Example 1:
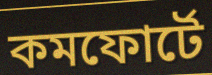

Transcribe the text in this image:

কমফোর্টে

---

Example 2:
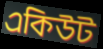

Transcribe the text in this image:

একিউট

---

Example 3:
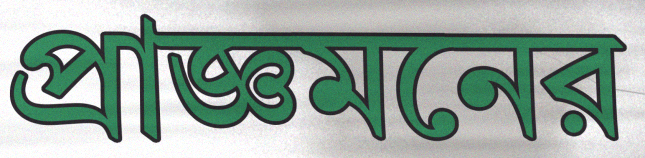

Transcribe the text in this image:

প্রাজ্ঞমনের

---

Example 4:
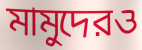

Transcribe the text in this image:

মামুদেরও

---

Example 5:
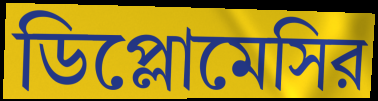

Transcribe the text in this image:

ডিপ্লোমেসির